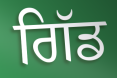
ਗਿੱਡ